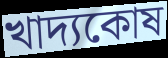
খাদ্যকোষ